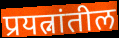
प्रयत्नांतील